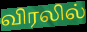
விரலில்